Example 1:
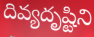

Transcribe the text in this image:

దివ్యదృష్టిని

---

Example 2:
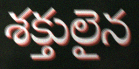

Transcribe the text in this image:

శక్తులైన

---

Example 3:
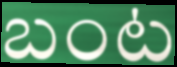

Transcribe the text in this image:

బంట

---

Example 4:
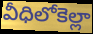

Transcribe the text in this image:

వీధిలోకెల్లా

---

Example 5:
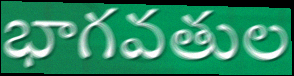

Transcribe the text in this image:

భాగవతుల